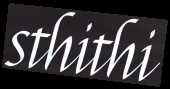
sthithi